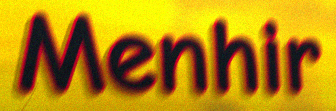
Menhir